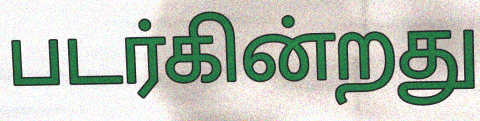
படர்கின்றது